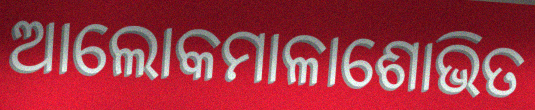
ଆଲୋକମାଳାଶୋଭିତ